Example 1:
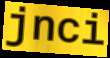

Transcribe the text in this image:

jnci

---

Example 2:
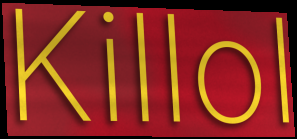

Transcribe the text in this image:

Killol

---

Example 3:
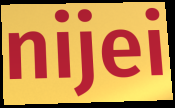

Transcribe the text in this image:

nijei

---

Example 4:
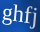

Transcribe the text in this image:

ghfj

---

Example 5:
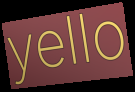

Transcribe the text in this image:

yello